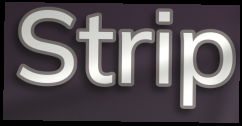
Strip